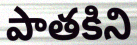
పాతకిని